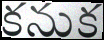
కనుక